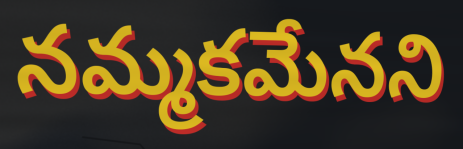
నమ్మకమేనని